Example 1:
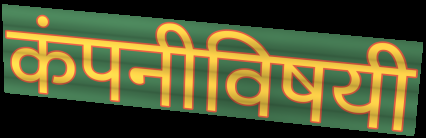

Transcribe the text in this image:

कंपनीविषयी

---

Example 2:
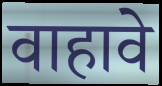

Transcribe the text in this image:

वाहावे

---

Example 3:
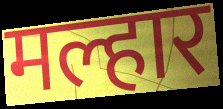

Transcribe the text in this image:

मल्हार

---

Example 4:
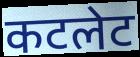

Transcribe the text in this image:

कटलेट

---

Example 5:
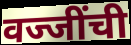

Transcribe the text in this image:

वज्जींची